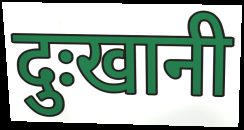
दुःखानी